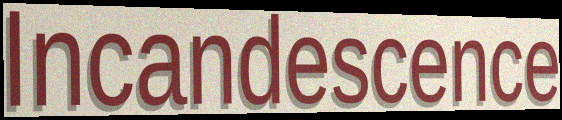
Incandescence